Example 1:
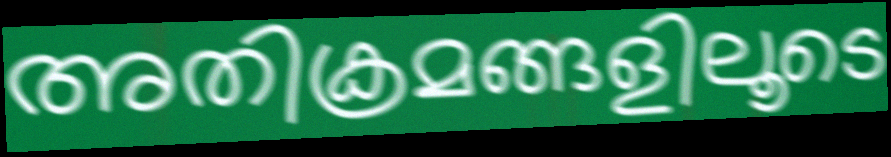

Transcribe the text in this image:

അതിക്രമങ്ങളിലൂടെ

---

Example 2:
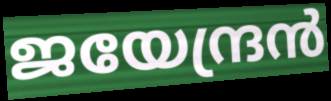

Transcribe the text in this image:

ജയേന്ദ്രൻ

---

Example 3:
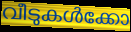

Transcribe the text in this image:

വീടുകൾക്കോ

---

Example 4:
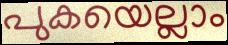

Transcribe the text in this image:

പുകയെല്ലാം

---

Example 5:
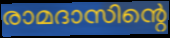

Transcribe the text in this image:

രാമദാസിന്റെ